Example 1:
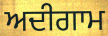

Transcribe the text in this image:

ਅਦੀਗਾਮ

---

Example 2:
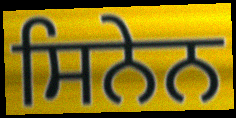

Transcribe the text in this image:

ਸਿਨੇਨ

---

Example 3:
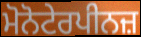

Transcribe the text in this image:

ਮੋਨੋਟੇਰਪੀਨਜ਼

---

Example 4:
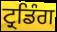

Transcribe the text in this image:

ਟ੍ਰਡਿੰਗ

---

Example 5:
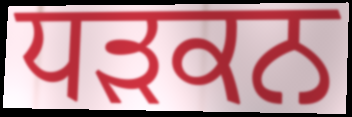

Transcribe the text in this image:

ਧੜਕਨ